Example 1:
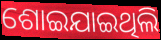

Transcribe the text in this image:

ଶୋଇଯାଇଥିଲି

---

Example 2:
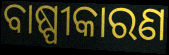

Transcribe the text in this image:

ବାଷ୍ପୀକାରଣ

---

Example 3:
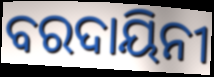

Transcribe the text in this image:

ବରଦାୟିନୀ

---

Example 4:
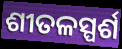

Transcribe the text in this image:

ଶୀତଳସ୍ପର୍ଶ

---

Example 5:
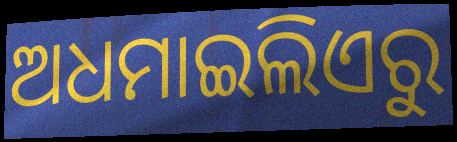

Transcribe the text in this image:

ଅଧମାଇଲିଏରୁ